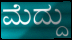
ಮೆದ್ದು